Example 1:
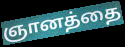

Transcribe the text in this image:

ஞானத்தை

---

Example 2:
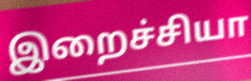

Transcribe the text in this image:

இறைச்சியா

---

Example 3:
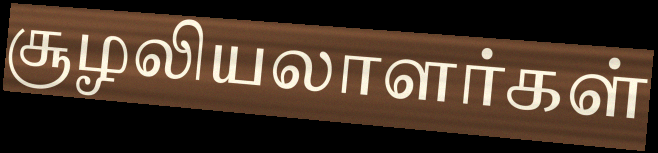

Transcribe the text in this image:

சூழலியலாளர்கள்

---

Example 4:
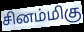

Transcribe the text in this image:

சினம்மிகு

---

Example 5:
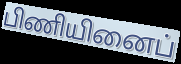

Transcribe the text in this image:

பிணியினைப்